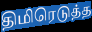
திமிரெடுத்த